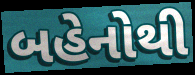
બહેનોથી